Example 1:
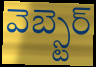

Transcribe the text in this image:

వెబ్స్టెర్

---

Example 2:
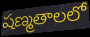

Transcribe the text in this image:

షణ్మతాలలో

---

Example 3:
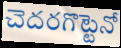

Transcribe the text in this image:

చెదరగొట్టెనో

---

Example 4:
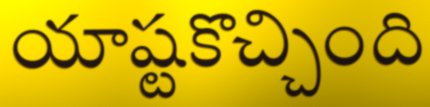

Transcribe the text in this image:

యాష్టకొచ్చింది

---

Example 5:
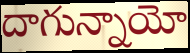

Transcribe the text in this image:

దాగున్నాయో